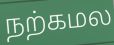
நற்கமல